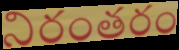
నిరంతరం